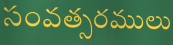
సంవత్సరములు